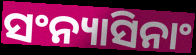
ସଂନ୍ୟାସିନାଂ